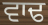
ਵਾਢ